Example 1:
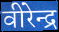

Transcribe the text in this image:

वीरेन्द्र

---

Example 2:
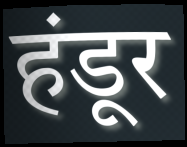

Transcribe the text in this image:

हंडूर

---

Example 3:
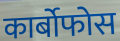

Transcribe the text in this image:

कार्बोफोस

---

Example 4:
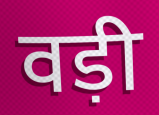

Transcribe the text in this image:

वड़ी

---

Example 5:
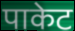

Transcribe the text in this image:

पाकेट